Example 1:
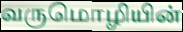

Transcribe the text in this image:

வருமொழியின்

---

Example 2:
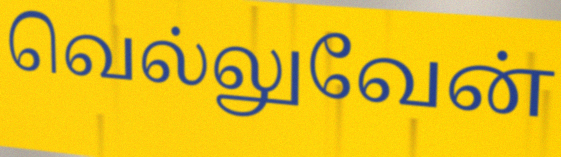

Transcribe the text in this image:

வெல்லுவேன்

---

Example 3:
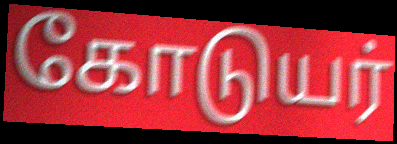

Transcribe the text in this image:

கோடுயர்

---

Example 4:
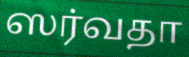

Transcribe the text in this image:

ஸர்வதா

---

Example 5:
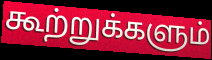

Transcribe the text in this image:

கூற்றுக்களும்